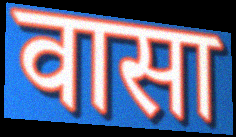
वासा